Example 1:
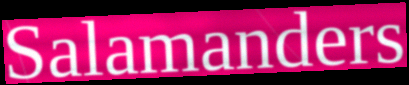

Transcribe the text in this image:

Salamanders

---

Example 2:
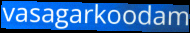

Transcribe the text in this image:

vasagarkoodam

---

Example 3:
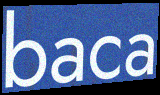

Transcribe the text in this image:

baca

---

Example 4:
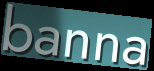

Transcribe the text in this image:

banna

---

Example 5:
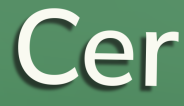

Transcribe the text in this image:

Cer